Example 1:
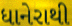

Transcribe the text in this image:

ધાનેરાથી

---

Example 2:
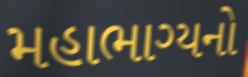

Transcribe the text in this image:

મહાભાગ્યનો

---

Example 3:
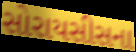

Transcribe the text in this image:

સોરાયસીસના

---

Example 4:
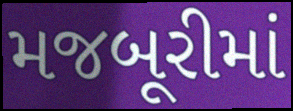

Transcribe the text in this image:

મજબૂરીમાં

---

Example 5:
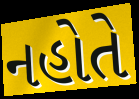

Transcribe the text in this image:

નહોતે